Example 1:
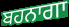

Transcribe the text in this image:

ਬਹਨਾਗਾ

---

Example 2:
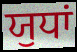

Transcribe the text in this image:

ਯੁਧਾਂ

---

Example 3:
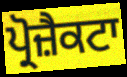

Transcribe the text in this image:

ਪ੍ਰੋਜ਼ੈਕਟਾ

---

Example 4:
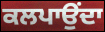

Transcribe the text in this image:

ਕਲਪਾਉਂਦਾ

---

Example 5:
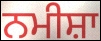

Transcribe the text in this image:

ਨਮੀਸ਼ਾ